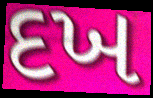
દખ